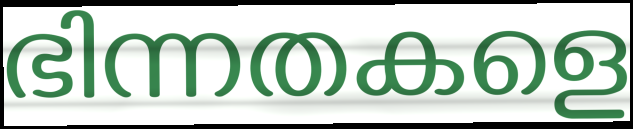
ഭിന്നതകളെ